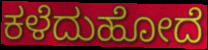
ಕಳೆದುಹೋದೆ